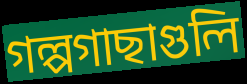
গল্পগাছাগুলি